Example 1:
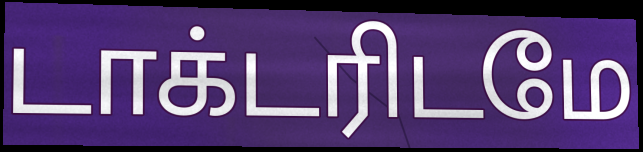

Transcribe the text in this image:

டாக்டரிடமே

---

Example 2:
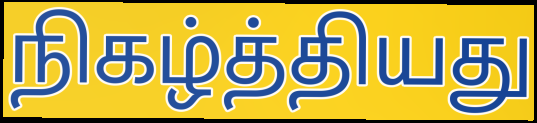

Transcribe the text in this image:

நிகழ்த்தியது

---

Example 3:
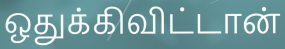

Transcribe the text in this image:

ஒதுக்கிவிட்டான்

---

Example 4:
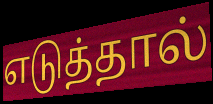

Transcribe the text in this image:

எடுத்தால்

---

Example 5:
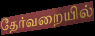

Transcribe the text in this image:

தேர்வறையில்